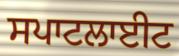
ਸਪਾਟਲਾਈਟ